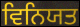
ਵਿਨਿਯਤ